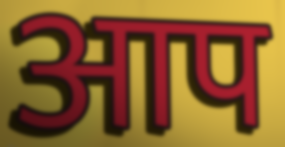
आप